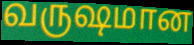
வருஷமான